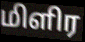
மிளிர